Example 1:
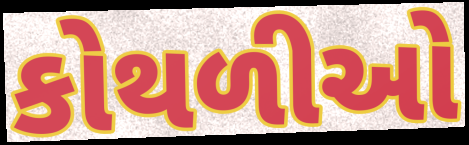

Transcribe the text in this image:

કોથળીઓ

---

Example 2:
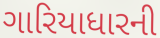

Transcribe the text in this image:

ગારિયાધારની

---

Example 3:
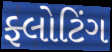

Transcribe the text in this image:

ફ્લોટિંગ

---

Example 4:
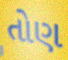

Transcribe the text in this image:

તોણ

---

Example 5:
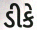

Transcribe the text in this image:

ડીકે